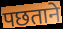
पछताने